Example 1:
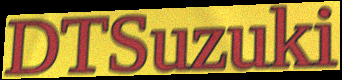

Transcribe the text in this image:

DTSuzuki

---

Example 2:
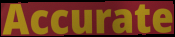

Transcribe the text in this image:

Accurate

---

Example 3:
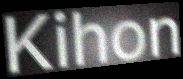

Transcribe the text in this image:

Kihon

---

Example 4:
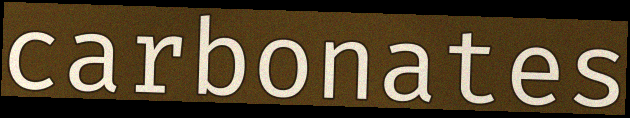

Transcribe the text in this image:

carbonates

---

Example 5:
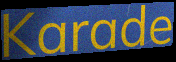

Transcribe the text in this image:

Karade